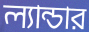
ল্যান্ডার